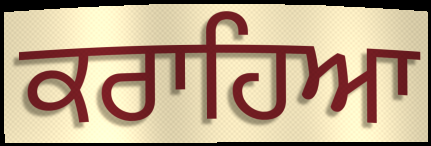
ਕਰਾਹਿਆ